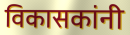
विकासकांनी